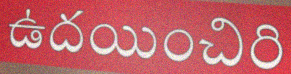
ఉదయించిరి